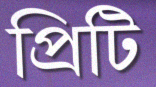
প্রিটি